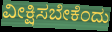
ವೀಕ್ಷಿಸಬೇಕೆಂದು